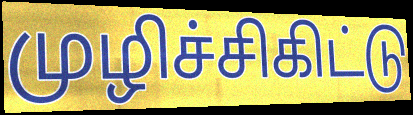
முழிச்சிகிட்டு